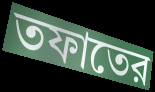
তফাতের